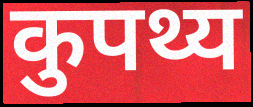
कुपथ्य